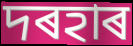
দৰহাৰ